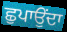
ਛੁਪਾਉਂਦਾ